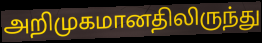
அறிமுகமானதிலிருந்து